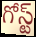
గోస్ట్